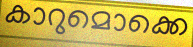
കാറുമൊക്കെ